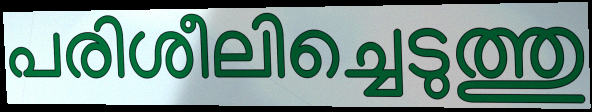
പരിശീലിച്ചെടുത്തു